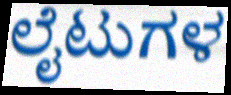
ಲೈಟುಗಳ